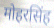
मोहरसिंह